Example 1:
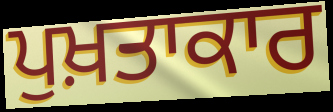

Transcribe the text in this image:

ਪੁਖ਼ਤਾਕਾਰ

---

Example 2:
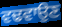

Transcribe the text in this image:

ਵਢਵਾਉਣ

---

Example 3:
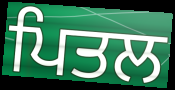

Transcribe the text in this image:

ਪਿਤਲ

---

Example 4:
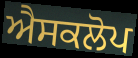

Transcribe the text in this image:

ਐਸਕਲੋਪ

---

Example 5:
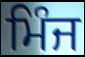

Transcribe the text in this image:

ਮਿੰਜ